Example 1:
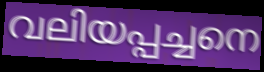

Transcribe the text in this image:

വലിയപ്പച്ചനെ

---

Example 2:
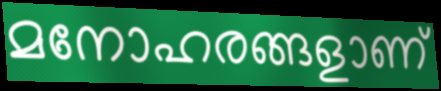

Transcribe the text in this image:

മനോഹരങ്ങളാണ്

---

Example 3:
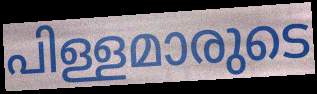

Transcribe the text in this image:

പിള്ളമാരുടെ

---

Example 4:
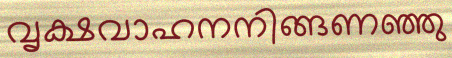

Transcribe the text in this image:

വൃക്ഷവാഹനനിങ്ങണഞ്ഞു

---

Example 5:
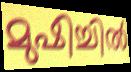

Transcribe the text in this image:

മുഷിച്ചിൽ